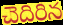
చెదిరిన